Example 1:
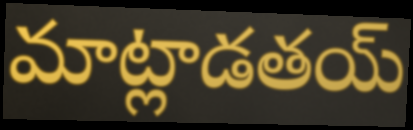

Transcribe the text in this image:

మాట్లాడతయ్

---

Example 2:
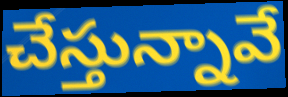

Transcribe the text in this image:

చేస్తున్నావే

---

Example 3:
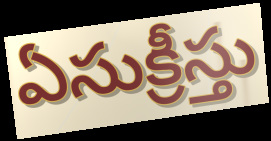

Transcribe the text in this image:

ఏసుక్రీస్తు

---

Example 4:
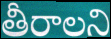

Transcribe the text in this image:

తీరాలని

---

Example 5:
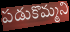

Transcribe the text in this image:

పడుకొమ్మని